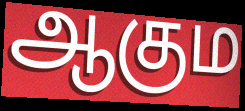
ஆகும